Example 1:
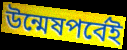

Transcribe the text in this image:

উন্মেষপর্বেই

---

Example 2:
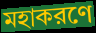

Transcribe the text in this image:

মহাকরণে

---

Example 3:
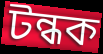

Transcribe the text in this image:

টন্ধক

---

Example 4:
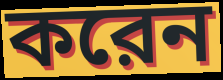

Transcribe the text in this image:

করেন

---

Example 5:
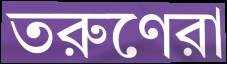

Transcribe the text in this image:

তরুণেরা